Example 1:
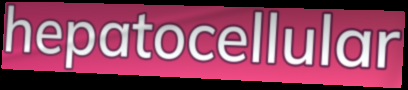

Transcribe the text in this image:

hepatocellular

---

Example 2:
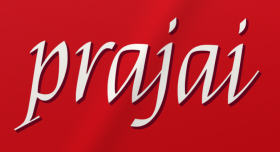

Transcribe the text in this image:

prajai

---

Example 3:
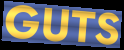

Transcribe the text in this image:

GUTS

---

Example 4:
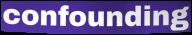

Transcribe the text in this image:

confounding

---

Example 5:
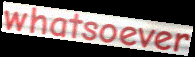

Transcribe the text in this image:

whatsoever